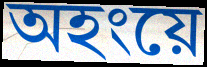
অহংয়ে